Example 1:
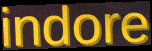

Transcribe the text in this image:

indore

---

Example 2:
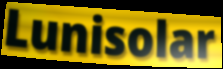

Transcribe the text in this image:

Lunisolar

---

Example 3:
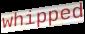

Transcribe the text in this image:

whipped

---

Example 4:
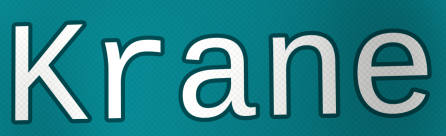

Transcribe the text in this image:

Krane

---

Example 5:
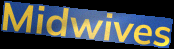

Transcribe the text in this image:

Midwives